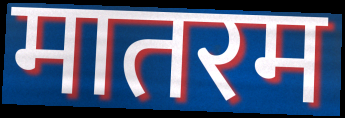
मातरम